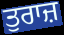
ਤੁਰਾਜ਼